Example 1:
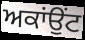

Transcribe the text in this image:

ਅਕਾਂਉਂਟ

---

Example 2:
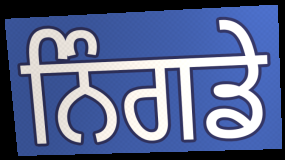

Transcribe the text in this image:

ਨਿੰਗਡੇ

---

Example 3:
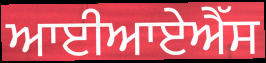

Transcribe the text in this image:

ਆਈਆਏਐੱਸ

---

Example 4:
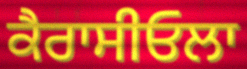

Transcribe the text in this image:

ਕੈਰਾਸੀਓਲਾ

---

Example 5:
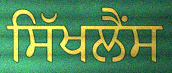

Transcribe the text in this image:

ਸਿੱਖਲੈਂਸ